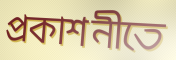
প্রকাশনীতে